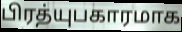
பிரத்யுபகாரமாக